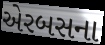
એરબસના